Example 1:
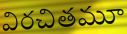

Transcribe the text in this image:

విరచితమూ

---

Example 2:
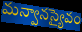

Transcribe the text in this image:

మన్వానస్యైవం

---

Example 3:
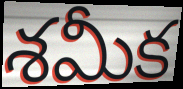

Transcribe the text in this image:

శమీక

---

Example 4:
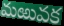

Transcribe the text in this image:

మఱువక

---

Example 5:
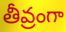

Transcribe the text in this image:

తీవ్రంగా